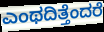
ಎಂಥದಿತ್ತೆಂದರೆ